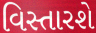
વિસ્તારશે